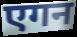
एगन